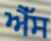
ਐੱਸ